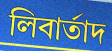
লিবার্তাদ